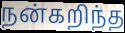
நன்கறிந்த